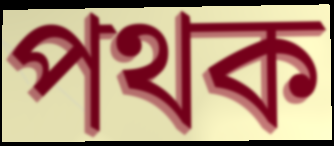
পথক